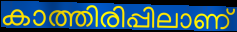
കാത്തിരിപ്പിലാണ്